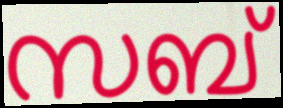
സബ്